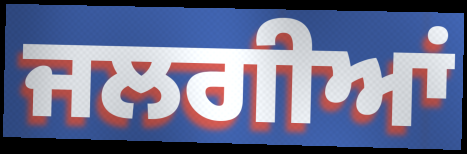
ਜਲਗੀਆਂ